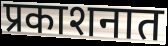
प्रकाशनात